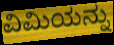
ವಿಮಿಯನ್ನು